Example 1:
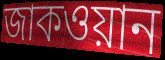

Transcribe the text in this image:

জাকওয়ান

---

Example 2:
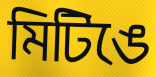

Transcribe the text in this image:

মিটিঙে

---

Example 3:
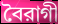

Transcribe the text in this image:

বৈরাগী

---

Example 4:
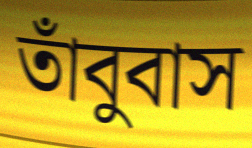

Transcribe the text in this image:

তাঁবুবাস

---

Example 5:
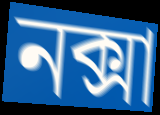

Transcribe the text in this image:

নক্সা